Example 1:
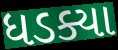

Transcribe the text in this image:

ધડક્યા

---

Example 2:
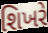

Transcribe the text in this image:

શિખરે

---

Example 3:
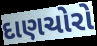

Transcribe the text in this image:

દાણચોરો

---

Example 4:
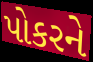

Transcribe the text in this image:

પોકરને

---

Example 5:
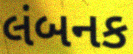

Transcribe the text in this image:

લંબનક